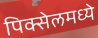
पिक्सेलमध्ये